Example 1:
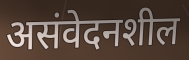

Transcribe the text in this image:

असंवेदनशील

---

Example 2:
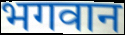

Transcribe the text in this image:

भगवान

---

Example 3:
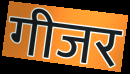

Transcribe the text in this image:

गीजर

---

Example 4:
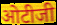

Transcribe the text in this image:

ओटीजी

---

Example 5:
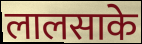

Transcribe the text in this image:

लालसाके